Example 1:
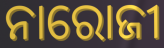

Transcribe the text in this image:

ନାରୋଜୀ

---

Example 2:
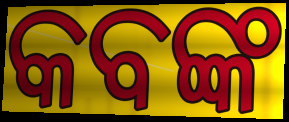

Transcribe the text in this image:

କବଙ୍କ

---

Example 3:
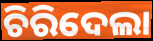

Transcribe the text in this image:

ଚିରିଦେଲା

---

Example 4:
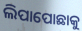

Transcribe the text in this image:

ଲିପାପୋଛାକୁ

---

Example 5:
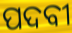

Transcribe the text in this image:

ପଦବୀ